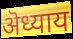
ऄध्याय